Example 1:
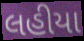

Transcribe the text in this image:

લહીયા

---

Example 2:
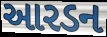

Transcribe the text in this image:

આરડન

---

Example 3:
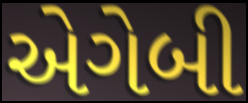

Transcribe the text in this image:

એગેબી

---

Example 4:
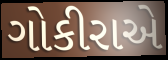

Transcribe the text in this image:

ગોકીરાએ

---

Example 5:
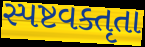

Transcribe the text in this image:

સ્પષ્ટવક્તૃતા